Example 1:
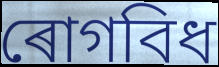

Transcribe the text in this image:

ৰোগবিধ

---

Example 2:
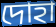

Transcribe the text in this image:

দোহা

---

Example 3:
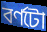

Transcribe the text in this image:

বৰ্ণটো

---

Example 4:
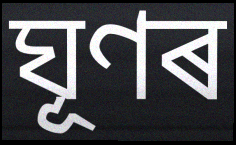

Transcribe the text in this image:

ঘূণৰ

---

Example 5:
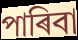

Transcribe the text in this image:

পাৰিবা